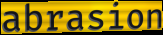
abrasion